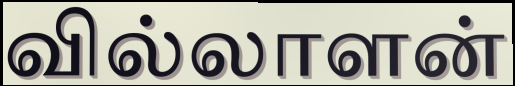
வில்லாளன்